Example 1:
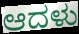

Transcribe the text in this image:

ಆದಳು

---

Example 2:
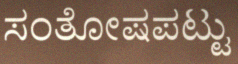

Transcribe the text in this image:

ಸಂತೋಷಪಟ್ಟು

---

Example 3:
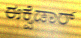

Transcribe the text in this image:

ಈಕ್ವೆಡಾರ್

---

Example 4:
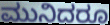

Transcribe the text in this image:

ಮುನಿದರೂ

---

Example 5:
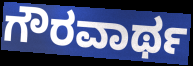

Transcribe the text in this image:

ಗೌರವಾರ್ಥ